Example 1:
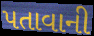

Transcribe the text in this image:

પતાવાની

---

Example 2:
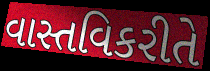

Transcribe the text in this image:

વાસ્તવિકરીતે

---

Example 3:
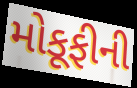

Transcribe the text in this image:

મોકૂફીની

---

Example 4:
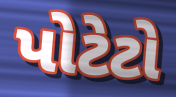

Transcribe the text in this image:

પોટેટો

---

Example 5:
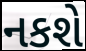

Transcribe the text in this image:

નકશે